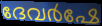
ദേവർഷേ